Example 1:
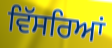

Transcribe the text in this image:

ਵਿੱਸਰਿਆਂ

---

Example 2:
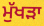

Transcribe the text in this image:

ਮੁੱਖੜਾ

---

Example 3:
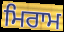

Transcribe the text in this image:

ਮਿਰਾਮ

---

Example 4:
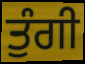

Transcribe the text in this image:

ਤੁੰਗੀ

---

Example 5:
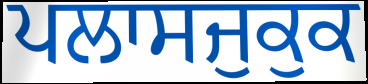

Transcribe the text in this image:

ਪਲਾਸਜੁਕੁਕ